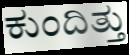
ಕುಂದಿತ್ತು